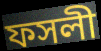
ফসলী